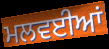
ਮਲਵਈਆਂ